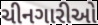
ચીનગારીઓ